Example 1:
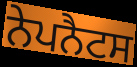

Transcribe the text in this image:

ਨੇਪਨੈਟਸ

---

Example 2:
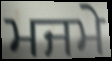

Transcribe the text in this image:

ਮਜਮੇ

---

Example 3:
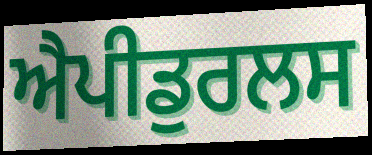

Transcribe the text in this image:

ਐਪੀਡੁਰਲਸ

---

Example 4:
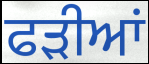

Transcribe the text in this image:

ਫੜੀਆਂ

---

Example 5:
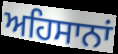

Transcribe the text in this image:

ਅਹਿਸਾਨਾਂ